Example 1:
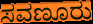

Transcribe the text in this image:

ಸವಣೂರು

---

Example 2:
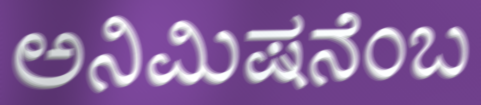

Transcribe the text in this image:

ಅನಿಮಿಷನೆಂಬ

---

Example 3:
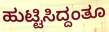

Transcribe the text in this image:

ಹುಟ್ಟಿಸಿದ್ದಂತೂ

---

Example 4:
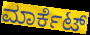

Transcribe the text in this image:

ಮಾರ್ಕೆಟ್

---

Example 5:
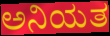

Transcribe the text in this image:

ಅನಿಯತ